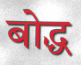
बोद्ध